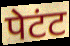
पेटंट